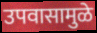
उपवासामुळे